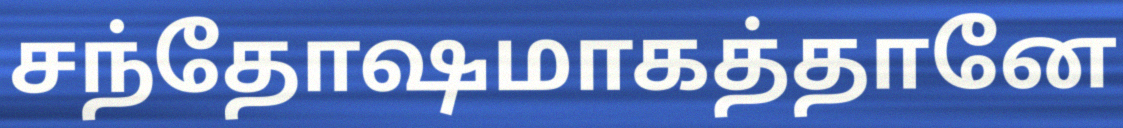
சந்தோஷமாகத்தானே